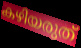
കഴിയരുത്